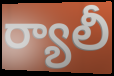
ర్యాలీ